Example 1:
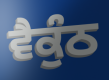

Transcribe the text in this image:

ਵੈਕੁੰਠ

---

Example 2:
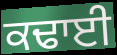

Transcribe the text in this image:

ਕਢਾਈ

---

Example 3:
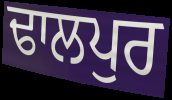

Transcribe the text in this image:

ਢਾਲਪੁਰ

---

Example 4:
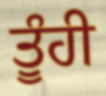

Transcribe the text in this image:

ਤੂੰਹੀ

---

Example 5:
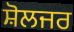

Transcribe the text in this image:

ਸ਼ੋਲਜਰ